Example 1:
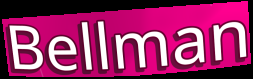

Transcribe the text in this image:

Bellman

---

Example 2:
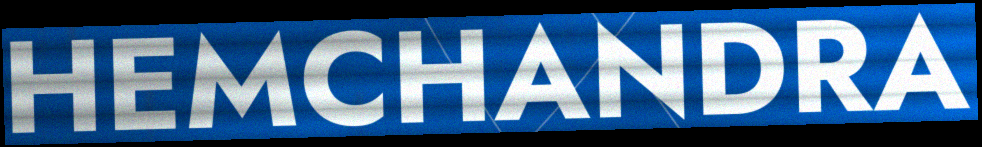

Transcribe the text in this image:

HEMCHANDRA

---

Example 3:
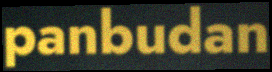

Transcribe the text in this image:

panbudan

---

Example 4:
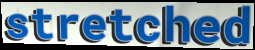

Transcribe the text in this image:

stretched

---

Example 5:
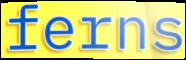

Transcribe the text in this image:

ferns